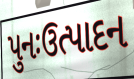
પુનઃઉત્પાદન